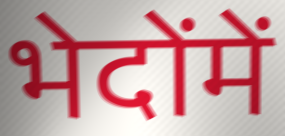
भेदोंमें